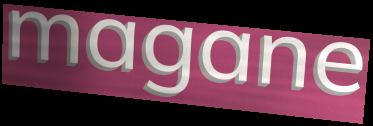
magane